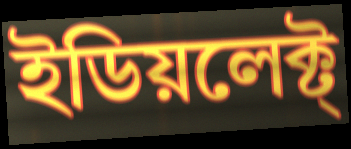
ইডিয়লেক্ট্